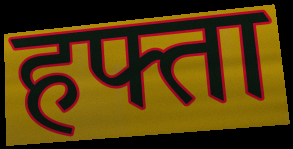
हफ्ता